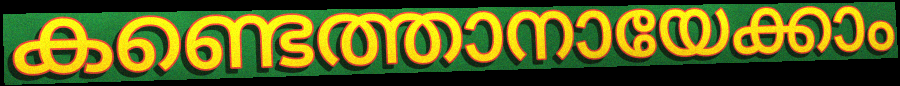
കണ്ടെത്താനായേക്കാം